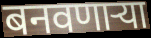
बनवणाऱ्या